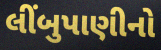
લીંબુપાણીનો